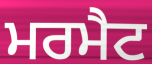
ਮਰਮੈਟ